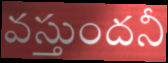
వస్తుందనీ